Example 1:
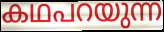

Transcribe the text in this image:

കഥപറയുന്ന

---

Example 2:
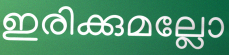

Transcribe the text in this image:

ഇരിക്കുമല്ലോ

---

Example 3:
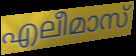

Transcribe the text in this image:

എലീമാസ്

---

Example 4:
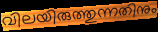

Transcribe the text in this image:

വിലയിരുത്തുന്നതിനും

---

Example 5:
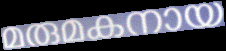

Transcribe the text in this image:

മരുമകനായ